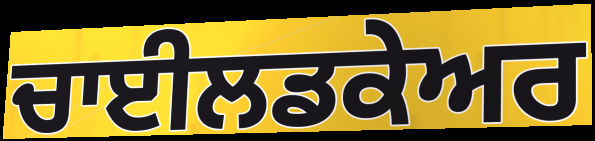
ਚਾਈਲਡਕੇਅਰ